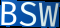
BSW